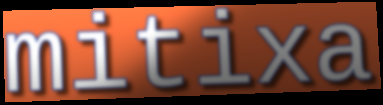
mitixa